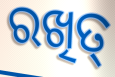
ରଖିତ୍